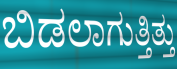
ಬಿಡಲಾಗುತ್ತಿತ್ತು